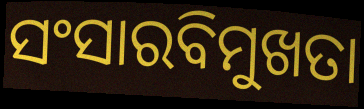
ସଂସାରବିମୁଖତା